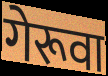
गेरूवा